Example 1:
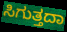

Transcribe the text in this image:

ಸಿಗುತ್ತದಾ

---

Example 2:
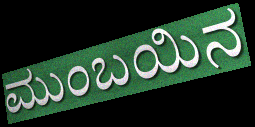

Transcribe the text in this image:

ಮುಂಬಯಿನ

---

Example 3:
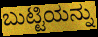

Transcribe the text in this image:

ಬುಟ್ಟಿಯನ್ನು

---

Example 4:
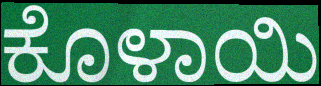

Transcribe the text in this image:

ಕೊಳಾಯಿ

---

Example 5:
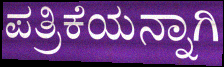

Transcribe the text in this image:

ಪತ್ರಿಕೆಯನ್ನಾಗಿ